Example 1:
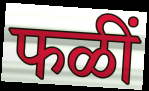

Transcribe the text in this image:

फळीं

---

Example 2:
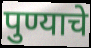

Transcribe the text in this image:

पुण्याचे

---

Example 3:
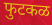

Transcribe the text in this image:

फुटकळ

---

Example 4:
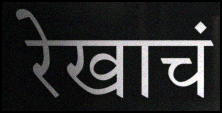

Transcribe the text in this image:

रेखाचं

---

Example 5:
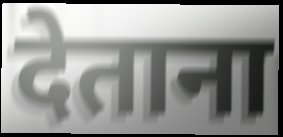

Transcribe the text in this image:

देताना